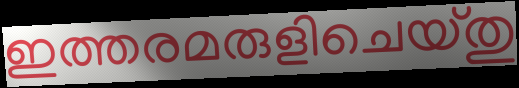
ഇത്തരമരുളിചെയ്തു